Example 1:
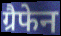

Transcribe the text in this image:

ग्रैफेन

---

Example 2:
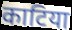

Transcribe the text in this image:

काटिया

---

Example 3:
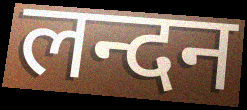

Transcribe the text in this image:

लन्दन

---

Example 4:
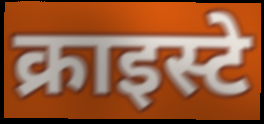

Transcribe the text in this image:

क्राइस्टे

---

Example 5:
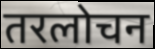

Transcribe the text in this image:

तरलोचन